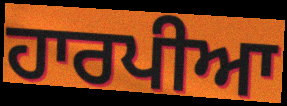
ਹਾਰਪੀਆ